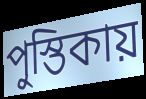
পুস্তিকায়